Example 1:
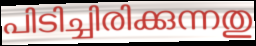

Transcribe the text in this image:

പിടിച്ചിരിക്കുന്നതു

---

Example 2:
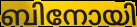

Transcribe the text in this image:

ബിനോയി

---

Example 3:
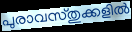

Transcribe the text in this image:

പുരാവസ്തുക്കളിൽ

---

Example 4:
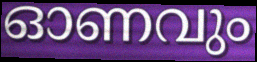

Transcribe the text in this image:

ഓണവും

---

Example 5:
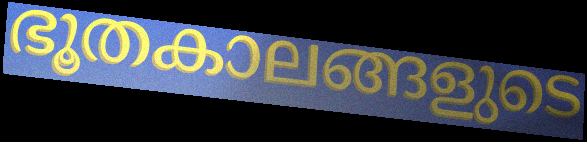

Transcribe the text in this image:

ഭൂതകാലങ്ങളുടെ